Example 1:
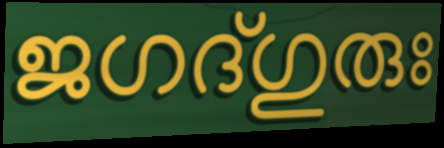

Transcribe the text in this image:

ജഗദ്ഗുരുഃ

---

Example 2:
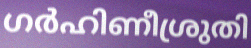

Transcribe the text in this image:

ഗർഹിണീശ്രുതി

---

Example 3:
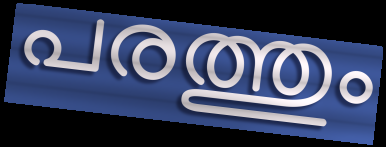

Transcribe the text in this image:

പരത്തും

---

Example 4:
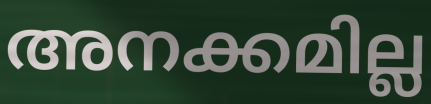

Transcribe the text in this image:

അനക്കമില്ല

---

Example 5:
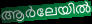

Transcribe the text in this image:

ആർലേയിൽ